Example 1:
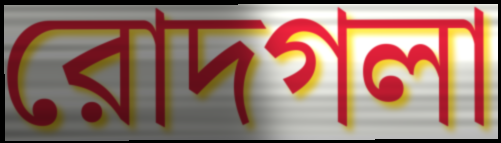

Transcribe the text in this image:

রোদগলা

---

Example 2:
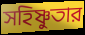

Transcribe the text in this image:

সহিষ্ণুতার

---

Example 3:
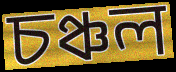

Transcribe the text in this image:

চঞ্চল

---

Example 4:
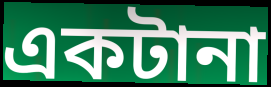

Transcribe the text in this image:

একটানা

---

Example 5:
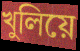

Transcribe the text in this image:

খুলিয়ে